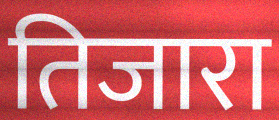
तिजारा